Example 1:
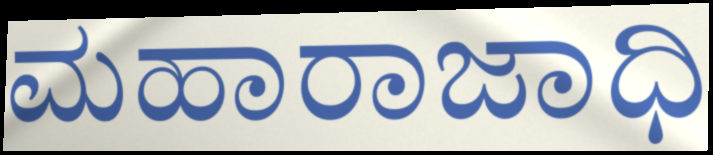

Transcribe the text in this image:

ಮಹಾರಾಜಾಧಿ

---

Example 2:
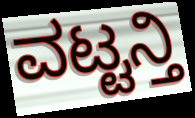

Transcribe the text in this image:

ವಟ್ಟನ್ತಿ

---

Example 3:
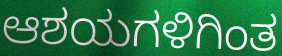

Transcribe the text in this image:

ಆಶಯಗಳಿಗಿಂತ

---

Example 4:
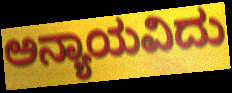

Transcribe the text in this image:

ಅನ್ಯಾಯವಿದು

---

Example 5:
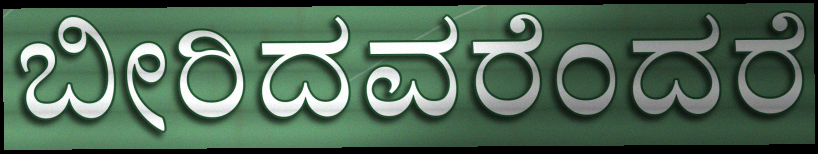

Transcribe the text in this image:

ಬೀರಿದವರೆಂದರೆ